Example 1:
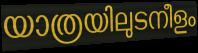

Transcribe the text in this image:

യാത്രയിലുടനീളം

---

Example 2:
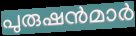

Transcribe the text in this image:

പുരുഷൻമാർ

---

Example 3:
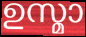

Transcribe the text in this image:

ഉസ്മാ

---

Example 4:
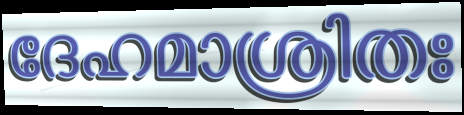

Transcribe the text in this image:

ദേഹമാശ്രിതഃ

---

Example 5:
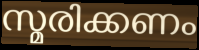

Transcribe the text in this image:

സ്മരിക്കണം